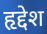
हृद्देश